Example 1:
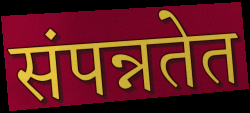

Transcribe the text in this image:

संपन्नतेत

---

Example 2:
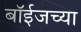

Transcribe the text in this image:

बॉईजच्या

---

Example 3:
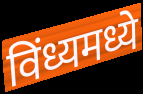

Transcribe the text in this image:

विंध्यमध्ये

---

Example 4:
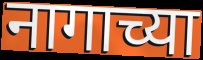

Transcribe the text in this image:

नागाच्या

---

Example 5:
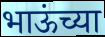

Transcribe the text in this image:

भाऊंच्या